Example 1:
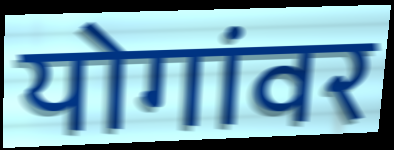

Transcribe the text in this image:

योगांवर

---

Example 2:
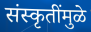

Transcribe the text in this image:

संस्कृतींमुळे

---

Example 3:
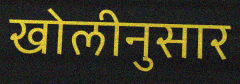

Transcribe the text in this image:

खोलीनुसार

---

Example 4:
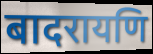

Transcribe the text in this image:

बादरायणि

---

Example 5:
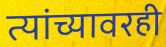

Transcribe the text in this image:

त्यांच्यावरही